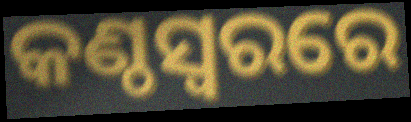
କଣ୍ଠସ୍ୱରରେ